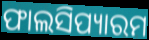
ଫାଲସିପ୍ୟାରମ